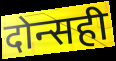
दोन्सही